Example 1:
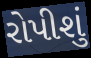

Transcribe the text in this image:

રોપીશું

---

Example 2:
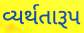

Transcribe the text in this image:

વ્યર્થતારૂપ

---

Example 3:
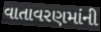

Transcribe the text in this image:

વાતાવરણમાંની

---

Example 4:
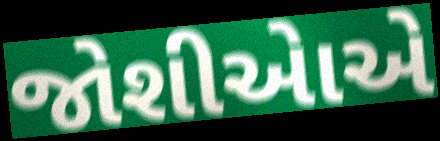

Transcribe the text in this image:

જોશીએાએ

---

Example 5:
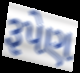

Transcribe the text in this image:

રૂપેણ